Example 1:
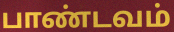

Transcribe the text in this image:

பாண்டவம்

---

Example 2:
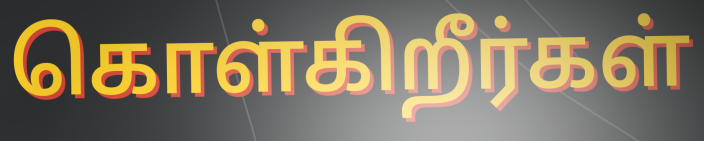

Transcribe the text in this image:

கொள்கிறீர்கள்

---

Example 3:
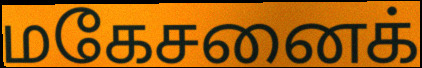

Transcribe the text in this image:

மகேசனைக்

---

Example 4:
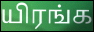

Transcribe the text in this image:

யிரங்க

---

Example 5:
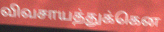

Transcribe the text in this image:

விவசாயத்துக்கென